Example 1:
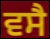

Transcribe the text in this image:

ਵਸੈ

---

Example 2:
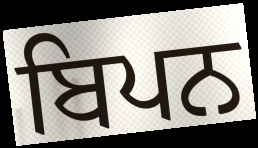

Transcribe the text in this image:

ਬਿਪਨ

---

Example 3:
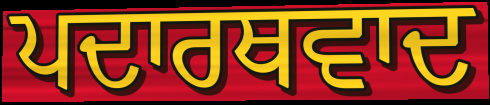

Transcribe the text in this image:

ਪਦਾਰਥਵਾਦ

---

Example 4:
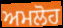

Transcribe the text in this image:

ਅਮਲੋਹ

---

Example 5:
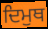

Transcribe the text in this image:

ਦਿਮੁਥ